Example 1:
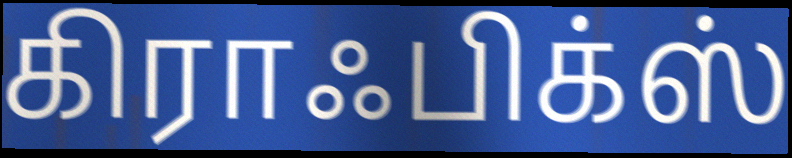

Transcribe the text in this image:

கிராஃபிக்ஸ்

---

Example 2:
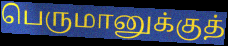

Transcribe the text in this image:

பெருமானுக்குத்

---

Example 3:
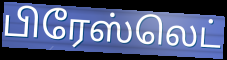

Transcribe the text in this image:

பிரேஸ்லெட்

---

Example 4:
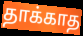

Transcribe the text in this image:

தாக்காத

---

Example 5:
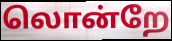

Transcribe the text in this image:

லொன்றே